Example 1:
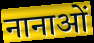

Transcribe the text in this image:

नानाओं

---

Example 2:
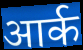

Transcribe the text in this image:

आर्क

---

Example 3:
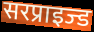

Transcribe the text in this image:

सरप्राइज्ड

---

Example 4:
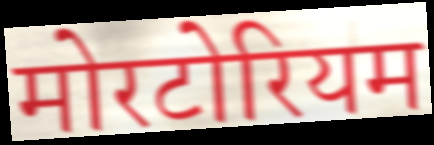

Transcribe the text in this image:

मोरटोरियम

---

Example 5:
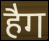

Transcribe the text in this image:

हैग